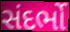
સંદર્ભો